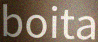
boita